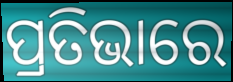
ପ୍ରତିଭାରେ